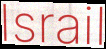
Israil